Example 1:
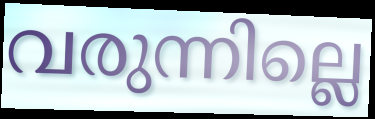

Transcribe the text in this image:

വരുന്നില്ലെ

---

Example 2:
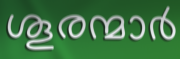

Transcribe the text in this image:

ശൂരന്മാർ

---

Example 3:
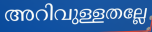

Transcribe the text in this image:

അറിവുള്ളതല്ലേ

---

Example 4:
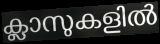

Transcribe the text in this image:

ക്ലാസുകളിൽ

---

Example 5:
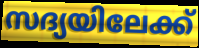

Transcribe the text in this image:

സദ്യയിലേക്ക്